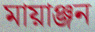
মায়াঞ্জন